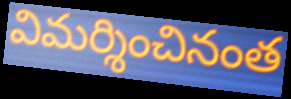
విమర్శించినంత